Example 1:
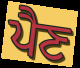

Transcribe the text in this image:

ਪੈਣ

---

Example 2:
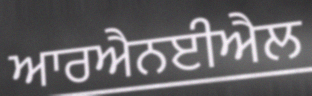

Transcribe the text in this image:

ਆਰਐਨਈਐਲ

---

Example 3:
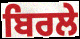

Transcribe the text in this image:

ਬਿਰਲੇ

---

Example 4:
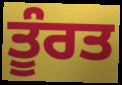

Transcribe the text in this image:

ਤੂੰਰਤ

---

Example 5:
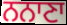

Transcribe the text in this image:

ਨਨਾਣਾ